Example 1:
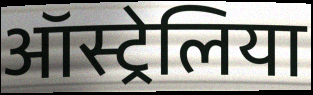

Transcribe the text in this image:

ऑस्ट्रेलिया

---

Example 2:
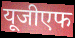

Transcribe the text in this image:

यूजीएफ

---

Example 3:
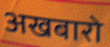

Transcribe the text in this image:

अखबारो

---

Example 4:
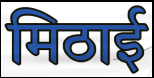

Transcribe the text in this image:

मिठाई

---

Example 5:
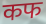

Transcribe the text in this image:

कफ